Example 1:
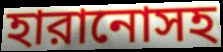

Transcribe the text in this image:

হারানোসহ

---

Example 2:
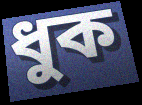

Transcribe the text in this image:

ধুক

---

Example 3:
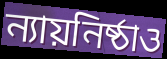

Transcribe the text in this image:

ন্যায়নিষ্ঠাও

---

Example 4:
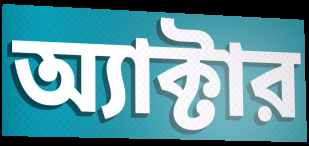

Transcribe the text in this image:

অ্যাক্টার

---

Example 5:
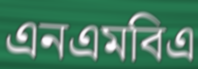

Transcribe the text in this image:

এনএমবিএ